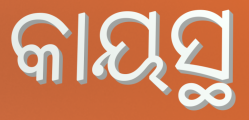
କାୟସ୍ଥ